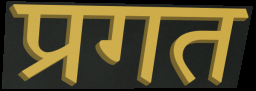
प्रगत